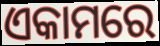
ଏକାମରେ